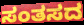
ಸಂತಸದ